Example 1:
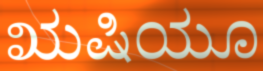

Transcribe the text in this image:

ಋಷಿಯೂ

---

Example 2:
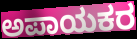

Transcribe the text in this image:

ಅಪಾಯಕರ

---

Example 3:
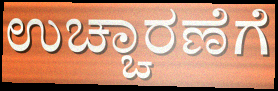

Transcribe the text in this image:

ಉಚ್ಚಾರಣೆಗೆ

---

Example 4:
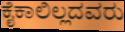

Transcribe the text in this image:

ಕೈಕಾಲಿಲ್ಲದವರು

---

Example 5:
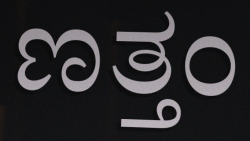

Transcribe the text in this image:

ಣತ್ತಂ